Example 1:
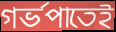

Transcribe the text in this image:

গৰ্ভপাতেই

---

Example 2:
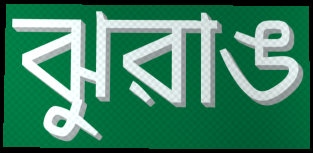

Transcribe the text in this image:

ঝুৱাঙ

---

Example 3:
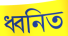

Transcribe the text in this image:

ধ্বনিত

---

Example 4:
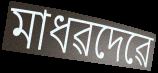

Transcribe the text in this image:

মাধৱদেৱে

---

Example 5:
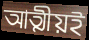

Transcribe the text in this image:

আত্মীয়ই